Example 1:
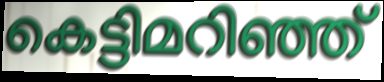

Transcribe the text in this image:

കെട്ടിമറിഞ്ഞ്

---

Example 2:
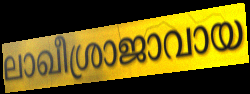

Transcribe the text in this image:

ലാഖീശ്രാജാവായ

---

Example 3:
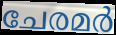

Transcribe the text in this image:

ചേരമർ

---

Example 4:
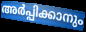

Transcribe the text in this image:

അർപ്പിക്കാനും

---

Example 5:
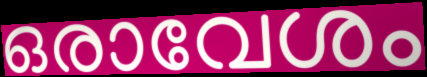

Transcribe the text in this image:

ഒരാവേശം